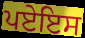
ਪਏਇਸ